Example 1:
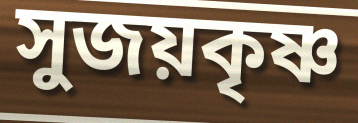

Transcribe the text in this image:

সুজয়কৃষ্ণ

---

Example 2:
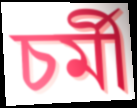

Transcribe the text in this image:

চর্মী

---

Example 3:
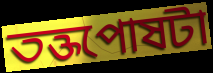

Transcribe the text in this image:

তক্তপোষটা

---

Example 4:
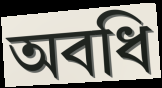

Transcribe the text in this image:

অবধি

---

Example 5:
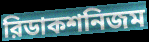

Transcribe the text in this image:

রিডাকশনিজম